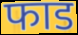
फाड